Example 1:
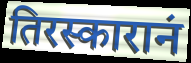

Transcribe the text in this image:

तिरस्कारानं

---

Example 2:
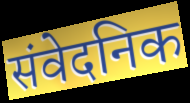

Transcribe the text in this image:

संवेदनिक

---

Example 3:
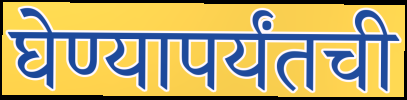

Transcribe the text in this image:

घेण्यापर्यंतची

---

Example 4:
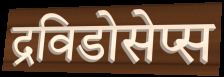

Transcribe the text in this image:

द्रविडोसेप्स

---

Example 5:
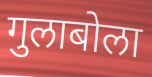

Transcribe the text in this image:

गुलाबोला